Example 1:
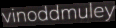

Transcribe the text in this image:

vinoddmuley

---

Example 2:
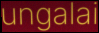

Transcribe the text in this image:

ungalai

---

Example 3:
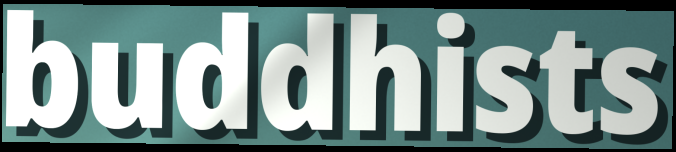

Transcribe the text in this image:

buddhists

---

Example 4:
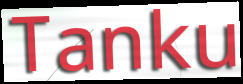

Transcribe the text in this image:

Tanku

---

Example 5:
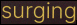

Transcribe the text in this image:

surging